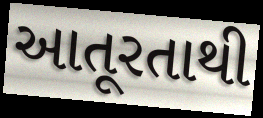
આતૂરતાથી